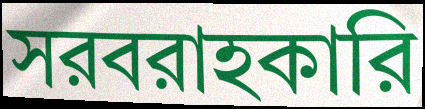
সরবরাহকারি